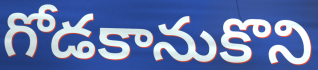
గోడకానుకొని